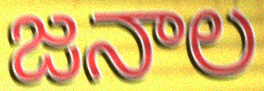
జనాల